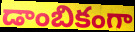
డాంబికంగా